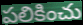
పలికించు